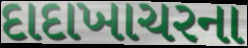
દાદાખાચરના